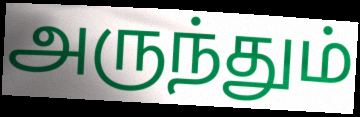
அருந்தும்